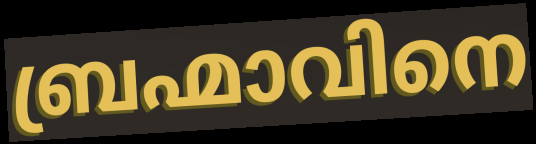
ബ്രഹ്മാവിനെ